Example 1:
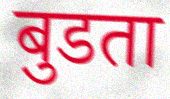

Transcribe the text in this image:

बुडता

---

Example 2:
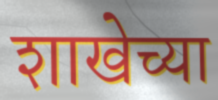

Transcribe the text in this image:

शाखेच्या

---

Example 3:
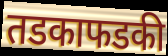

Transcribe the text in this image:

तडकाफडकी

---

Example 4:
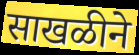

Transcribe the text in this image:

साखळीने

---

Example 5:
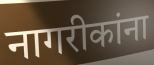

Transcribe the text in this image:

नागरीकांना